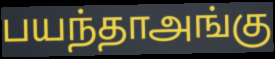
பயந்தாஅங்கு